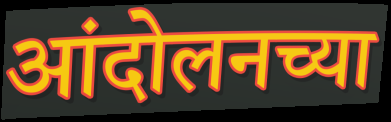
आंदोलनच्या